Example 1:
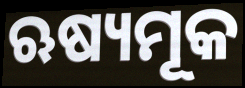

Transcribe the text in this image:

ଋଷ୍ୟମୂକ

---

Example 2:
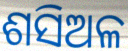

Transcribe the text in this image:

ଶସିଅଳ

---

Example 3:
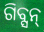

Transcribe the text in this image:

ଗିବ୍ସନ୍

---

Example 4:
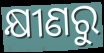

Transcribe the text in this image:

କ୍ଷୀଣରୁ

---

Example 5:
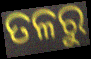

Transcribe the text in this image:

ତଳରୁ